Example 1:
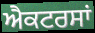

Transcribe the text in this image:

ਐਕਟਰਸਾਂ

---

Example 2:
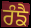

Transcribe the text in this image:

ਰੰਙੈ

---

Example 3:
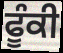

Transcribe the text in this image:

ਫੂੰਕੀ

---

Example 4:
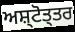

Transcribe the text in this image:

ਅਸ਼੍ਟੋਤ੍ਤਰ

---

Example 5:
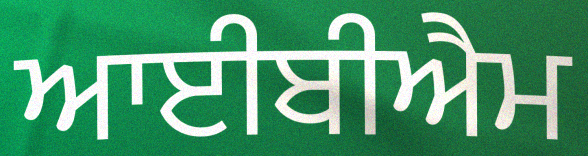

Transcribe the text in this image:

ਆਈਬੀਐਮ